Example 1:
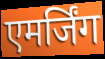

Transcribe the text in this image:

एमर्जिंग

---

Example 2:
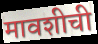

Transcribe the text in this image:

मावशीची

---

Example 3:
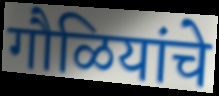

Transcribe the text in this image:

गौळियांचे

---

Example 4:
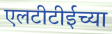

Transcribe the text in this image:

एलटीटीईच्या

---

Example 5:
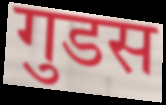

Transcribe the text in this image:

गुडस